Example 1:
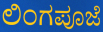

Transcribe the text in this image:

ಲಿಂಗಪೂಜೆ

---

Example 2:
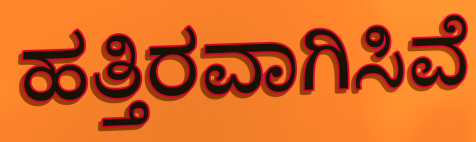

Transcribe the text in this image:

ಹತ್ತಿರವಾಗಿಸಿವೆ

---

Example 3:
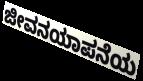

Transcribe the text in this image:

ಜೀವನಯಾಪನೆಯ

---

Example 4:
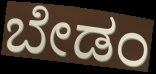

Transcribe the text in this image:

ಬೇಡಂ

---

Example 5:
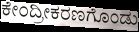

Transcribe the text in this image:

ಕೇಂದ್ರೀಕರಣಗೊಂಡು